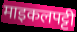
माइकलपट्टी